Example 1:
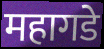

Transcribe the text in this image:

महागडे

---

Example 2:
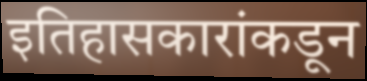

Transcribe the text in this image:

इतिहासकारांकडून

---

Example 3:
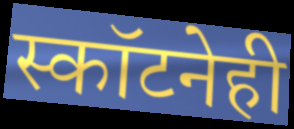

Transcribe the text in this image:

स्कॉटनेही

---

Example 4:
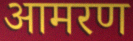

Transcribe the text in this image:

आमरण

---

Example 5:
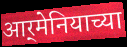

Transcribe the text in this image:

आर्मेनियाच्या